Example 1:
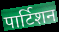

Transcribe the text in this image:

पार्टिशन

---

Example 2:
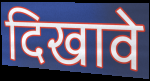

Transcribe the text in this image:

दिखावे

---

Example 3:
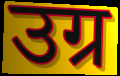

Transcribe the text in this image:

उग्र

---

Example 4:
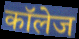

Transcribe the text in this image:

कॉलेज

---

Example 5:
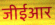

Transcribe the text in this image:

जीईआर